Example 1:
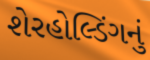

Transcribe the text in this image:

શેરહોલ્ડિંગનું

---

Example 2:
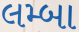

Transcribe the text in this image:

લમ્બા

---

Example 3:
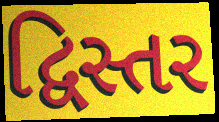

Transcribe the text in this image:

દ્વિસ્તર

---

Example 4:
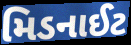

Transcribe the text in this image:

મિડનાઈટ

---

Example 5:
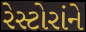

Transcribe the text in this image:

રેસ્ટોરાંને